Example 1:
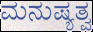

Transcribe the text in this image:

ಮನುಷ್ಯತ್ವ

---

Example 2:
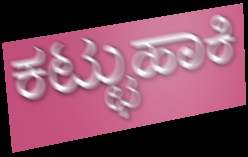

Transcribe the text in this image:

ಕಟ್ಟುಹಾಕಿ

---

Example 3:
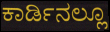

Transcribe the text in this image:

ಕಾರ್ಡಿನಲ್ಲೂ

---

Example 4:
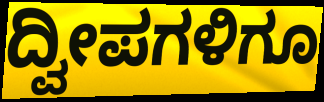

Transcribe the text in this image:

ದ್ವೀಪಗಳಿಗೂ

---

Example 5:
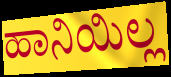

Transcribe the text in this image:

ಹಾನಿಯಿಲ್ಲ